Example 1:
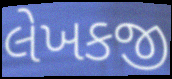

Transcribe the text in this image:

લેખકજી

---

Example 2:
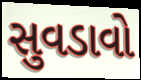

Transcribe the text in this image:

સુવડાવો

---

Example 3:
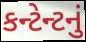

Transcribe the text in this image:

કન્ટેન્ટનું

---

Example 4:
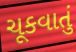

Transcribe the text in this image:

ચૂકવાતું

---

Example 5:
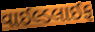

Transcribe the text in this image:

વાઈલ્ડલાઈફ